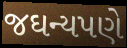
જઘન્યપણે